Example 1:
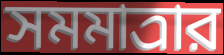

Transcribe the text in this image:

সমমাত্রার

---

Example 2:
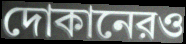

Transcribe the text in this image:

দোকানেরও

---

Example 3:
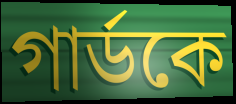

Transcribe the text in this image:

গার্ডকে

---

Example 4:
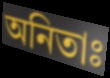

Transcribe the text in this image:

অনিতাঃ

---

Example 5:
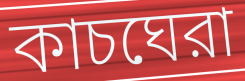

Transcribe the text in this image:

কাচঘেরা